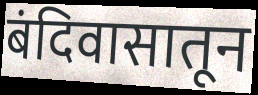
बंदिवासातून